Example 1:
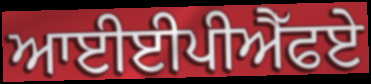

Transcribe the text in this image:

ਆਈਈਪੀਐੱਫਏ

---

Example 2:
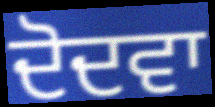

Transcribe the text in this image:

ਦੋਦਵਾ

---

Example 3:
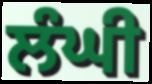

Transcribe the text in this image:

ਲੰਘੀ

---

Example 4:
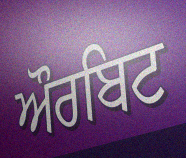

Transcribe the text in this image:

ਔਰਬਿਟ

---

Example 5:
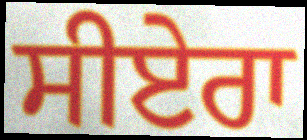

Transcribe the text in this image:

ਸੀਏਰਾ